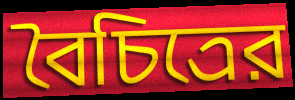
বৈচিত্রের